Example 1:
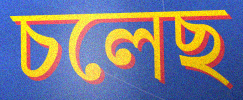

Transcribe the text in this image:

চলেছ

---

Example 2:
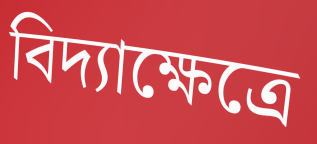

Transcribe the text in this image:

বিদ্যাক্ষেত্রে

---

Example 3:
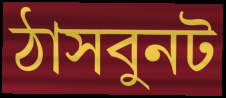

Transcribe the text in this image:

ঠাসবুনট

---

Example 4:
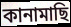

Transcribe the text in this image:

কানামাছি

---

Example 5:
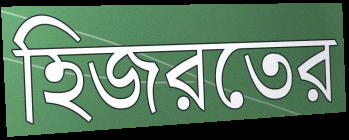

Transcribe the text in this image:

হিজরতের